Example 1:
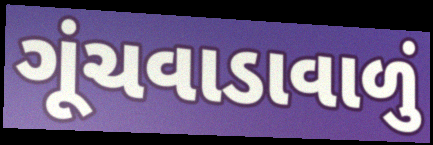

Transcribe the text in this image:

ગૂંચવાડાવાળું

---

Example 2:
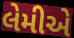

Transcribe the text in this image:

લેમીએ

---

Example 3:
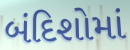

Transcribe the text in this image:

બંદિશોમાં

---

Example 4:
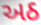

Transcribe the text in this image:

અઠ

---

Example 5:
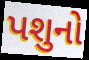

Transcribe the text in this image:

પશુનો